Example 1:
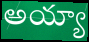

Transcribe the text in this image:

అయ్యా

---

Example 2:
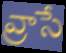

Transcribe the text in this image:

వ్రాసే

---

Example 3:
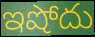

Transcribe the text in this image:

ఇషోదు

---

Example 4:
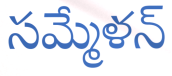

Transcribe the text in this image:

సమ్మేళన్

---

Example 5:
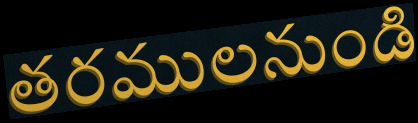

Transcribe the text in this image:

తరములనుండి